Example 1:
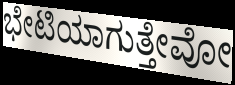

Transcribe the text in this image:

ಭೇಟಿಯಾಗುತ್ತೇವೋ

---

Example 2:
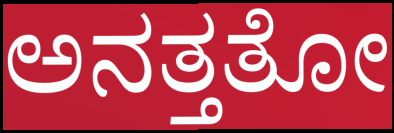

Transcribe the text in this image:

ಅನತ್ತತೋ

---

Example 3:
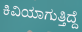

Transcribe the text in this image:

ಕಿವಿಯಾಗುತ್ತಿದ್ದೆ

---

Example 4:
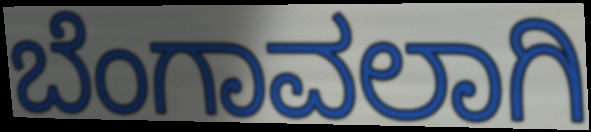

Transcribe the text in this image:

ಬೆಂಗಾವಲಾಗಿ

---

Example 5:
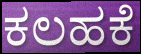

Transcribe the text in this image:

ಕಲಹಕೆ